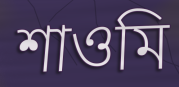
শাওমি